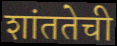
शांततेची